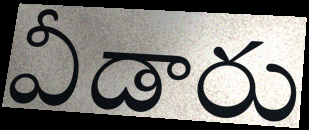
వీడారు